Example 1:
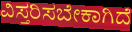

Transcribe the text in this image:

ವಿಸ್ತರಿಸಬೇಕಾಗಿದೆ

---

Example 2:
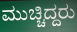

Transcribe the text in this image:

ಮುಚ್ಚಿದ್ದರು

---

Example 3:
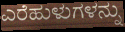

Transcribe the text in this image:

ಎರೆಹುಳುಗಳನ್ನು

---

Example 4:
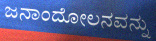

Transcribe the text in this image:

ಜನಾಂದೋಲನವನ್ನು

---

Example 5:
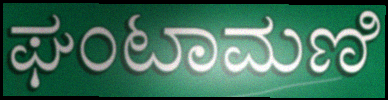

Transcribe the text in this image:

ಘಂಟಾಮಣಿ